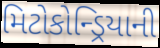
મિટોકોન્ડ્રિયાની